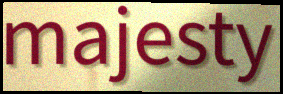
majesty